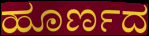
ಹೂರ್ಣದ